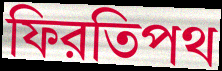
ফিরতিপথ